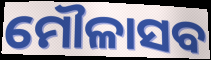
ମୌଳାସବ